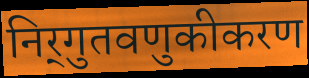
निर्गुतवणुकीकरण